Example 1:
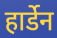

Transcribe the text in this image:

हार्डेन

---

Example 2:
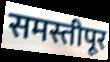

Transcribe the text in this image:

समस्तीपूर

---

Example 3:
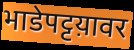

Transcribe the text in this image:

भाडेपट्टय़ावर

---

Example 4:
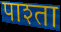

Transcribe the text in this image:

पाश्ता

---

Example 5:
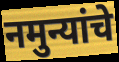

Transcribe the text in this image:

नमुन्यांचे